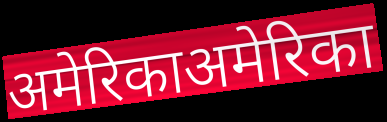
अमेरिकाअमेरिका